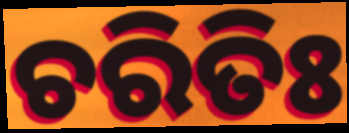
ଚରିତିଃ